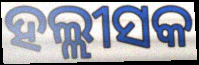
ହଲ୍ଲୀସକ